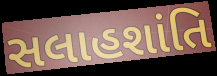
સલાહશાંતિ